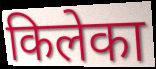
किलेका